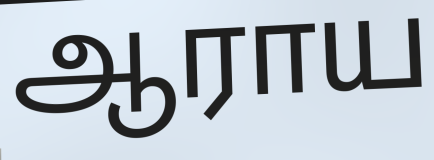
ஆராய